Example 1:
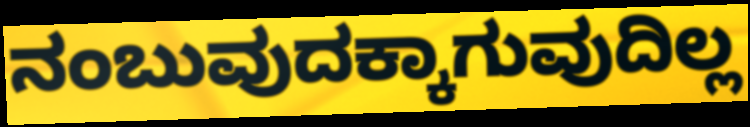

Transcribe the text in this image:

ನಂಬುವುದಕ್ಕಾಗುವುದಿಲ್ಲ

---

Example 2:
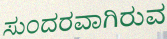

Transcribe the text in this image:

ಸುಂದರವಾಗಿರುವ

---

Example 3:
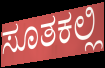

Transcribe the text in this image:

ಸೂತಕಲ್ಲಿ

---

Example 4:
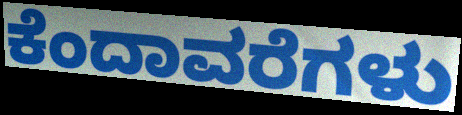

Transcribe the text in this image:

ಕೆಂದಾವರೆಗಳು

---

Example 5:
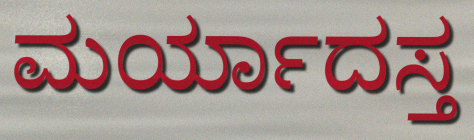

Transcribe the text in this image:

ಮರ್ಯಾದಸ್ತ